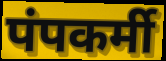
पंपकर्मी